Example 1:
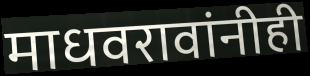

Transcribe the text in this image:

माधवरावांनीही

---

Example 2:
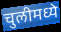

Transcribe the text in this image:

चुलीमध्ये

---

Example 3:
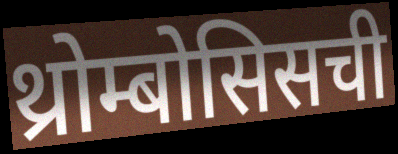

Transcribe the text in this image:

थ्रोम्बोसिसची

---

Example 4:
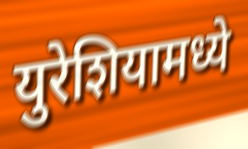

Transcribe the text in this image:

युरेशियामध्ये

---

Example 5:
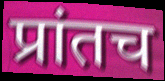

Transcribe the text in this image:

प्रांतच